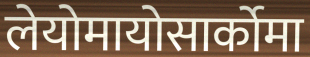
लेयोमायोसार्कोमा